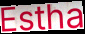
Estha